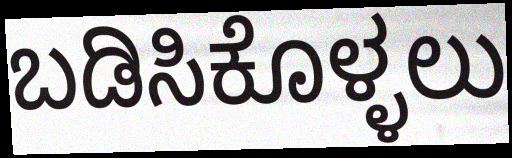
ಬಡಿಸಿಕೊಳ್ಳಲು